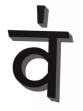
व॑